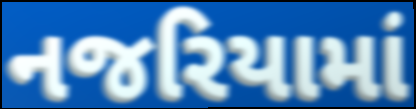
નજરિયામાં